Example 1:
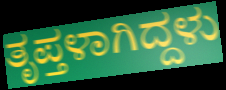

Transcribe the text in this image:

ತೃಪ್ತಳಾಗಿದ್ದಳು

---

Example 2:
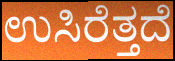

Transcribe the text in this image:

ಉಸಿರೆತ್ತದೆ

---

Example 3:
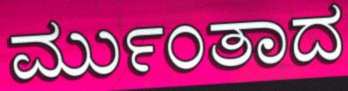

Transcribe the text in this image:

ರ್ಮುಂತಾದ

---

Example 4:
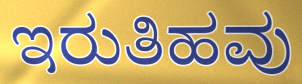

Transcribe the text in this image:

ಇರುತಿಹವು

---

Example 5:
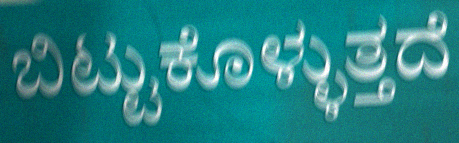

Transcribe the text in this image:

ಬಿಟ್ಟುಕೊಳ್ಳುತ್ತದೆ